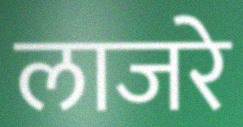
लाजरे